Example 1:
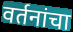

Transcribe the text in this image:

वर्तनांचा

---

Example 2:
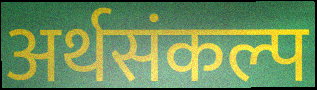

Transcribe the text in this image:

अर्थसंकल्प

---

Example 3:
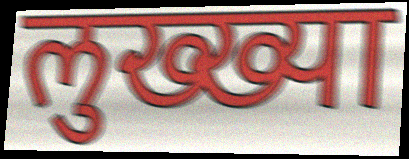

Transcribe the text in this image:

लुख्ख्या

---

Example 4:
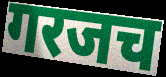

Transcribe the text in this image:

गरजच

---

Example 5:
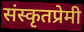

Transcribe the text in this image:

संस्कृतप्रेमी